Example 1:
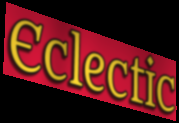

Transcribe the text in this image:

Eclectic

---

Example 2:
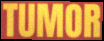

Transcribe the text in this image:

TUMOR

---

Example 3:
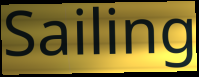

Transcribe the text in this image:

Sailing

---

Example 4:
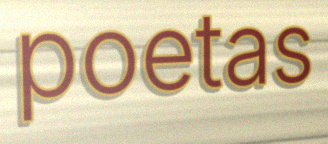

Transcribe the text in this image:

poetas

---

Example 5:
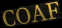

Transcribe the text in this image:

COAF